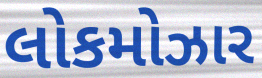
લોકમોઝાર